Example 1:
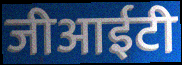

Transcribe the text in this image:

जीआईटी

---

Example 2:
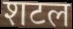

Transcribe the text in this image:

शटल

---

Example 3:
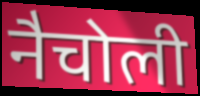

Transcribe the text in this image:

नैचोली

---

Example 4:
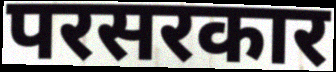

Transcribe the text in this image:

परसरकार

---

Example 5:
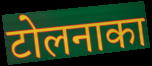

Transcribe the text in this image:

टोलनाका